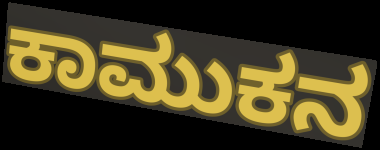
ಕಾಮುಕನ